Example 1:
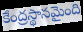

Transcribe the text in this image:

కేంద్రస్థానమైంది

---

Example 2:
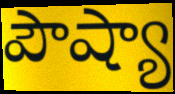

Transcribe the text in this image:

పౌష్యా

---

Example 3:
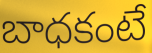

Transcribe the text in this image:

బాధకంటే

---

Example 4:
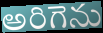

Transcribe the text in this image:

అరిగెను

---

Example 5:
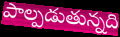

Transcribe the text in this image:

పాల్పడుతున్నది